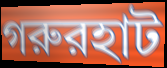
গরুরহাট